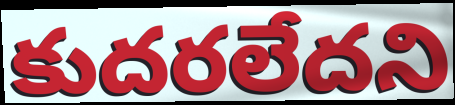
కుదరలేదని